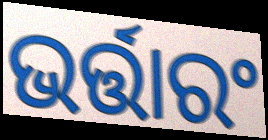
ଭର୍ତ୍ତାରଂ